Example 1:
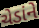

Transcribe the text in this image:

ચેડાંને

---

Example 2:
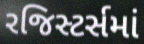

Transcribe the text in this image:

રજિસ્ટર્સમાં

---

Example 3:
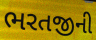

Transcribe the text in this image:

ભરતજીની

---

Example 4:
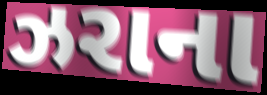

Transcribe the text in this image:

ઝરાના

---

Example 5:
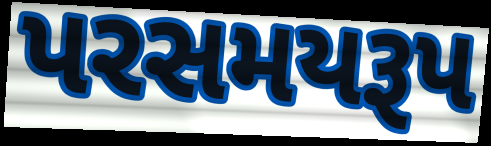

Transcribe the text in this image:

પરસમયરૂપ